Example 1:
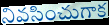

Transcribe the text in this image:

నివసించుగాక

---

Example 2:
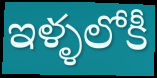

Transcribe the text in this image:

ఇళ్ళలోకీ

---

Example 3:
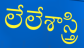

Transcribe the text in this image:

లేలేశాస్త్రి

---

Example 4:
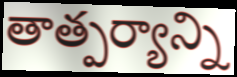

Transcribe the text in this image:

తాత్పర్యాన్ని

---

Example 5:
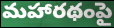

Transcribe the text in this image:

మహారథంపై